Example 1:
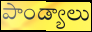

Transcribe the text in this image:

పాండ్యాలు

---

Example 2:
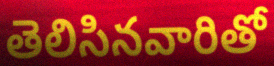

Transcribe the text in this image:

తెలిసినవారితో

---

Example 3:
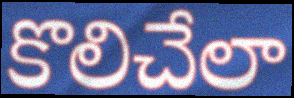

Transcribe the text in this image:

కొలిచేలా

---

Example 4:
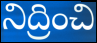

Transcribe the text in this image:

నిద్రించి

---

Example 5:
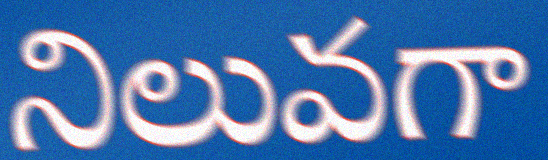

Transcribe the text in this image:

నిలువగా